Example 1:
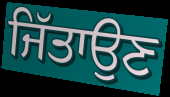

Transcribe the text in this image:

ਜਿੱਤਾਉਣ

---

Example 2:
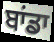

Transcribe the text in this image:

ਬਾਂਡਾ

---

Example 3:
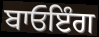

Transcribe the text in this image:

ਬਾਓਇੰਗ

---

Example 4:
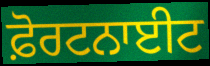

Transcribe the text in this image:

ਫ਼ੋਰਟਨਾਈਟ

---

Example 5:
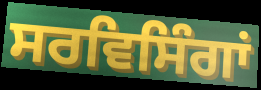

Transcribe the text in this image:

ਸਰਵਿਸਿੰਗਾਂ